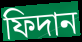
ফিদান